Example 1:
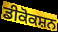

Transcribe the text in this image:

ਡੀਕੋਕਸ਼ਨ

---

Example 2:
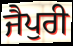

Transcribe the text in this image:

ਜੈਪੁਰੀ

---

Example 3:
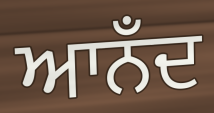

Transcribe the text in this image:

ਆਨਁਦ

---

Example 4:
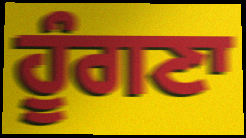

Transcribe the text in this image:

ਹੂੰਗਣਾ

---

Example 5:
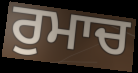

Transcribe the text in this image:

ਰੁਮਾਚ